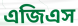
এজিএস